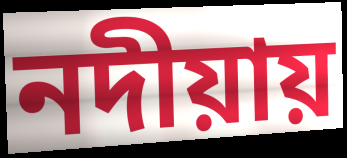
নদীয়ায়